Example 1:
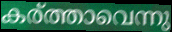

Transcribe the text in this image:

കര്ത്താവെന്നു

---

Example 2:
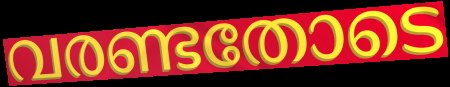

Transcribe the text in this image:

വരണ്ടതോടെ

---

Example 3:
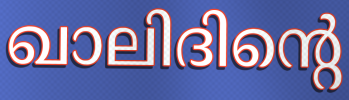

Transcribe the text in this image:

ഖാലിദിന്റെ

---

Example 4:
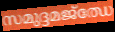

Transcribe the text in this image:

സമുദ്ദമജ്ഝേ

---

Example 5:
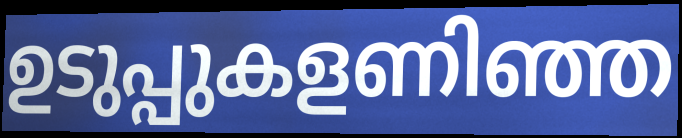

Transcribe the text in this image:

ഉടുപ്പുകളണിഞ്ഞ